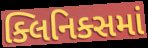
ક્લિનિક્સમાં